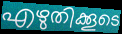
എഴുതിക്കൂടെ